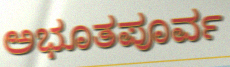
ಅಭೂತಪೂರ್ವ